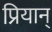
प्रियान्